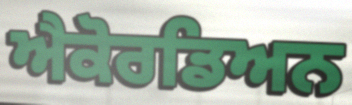
ਐਕੋਰਡਿਅਨ